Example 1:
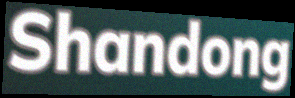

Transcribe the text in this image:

Shandong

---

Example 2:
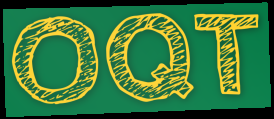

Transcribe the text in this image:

OQT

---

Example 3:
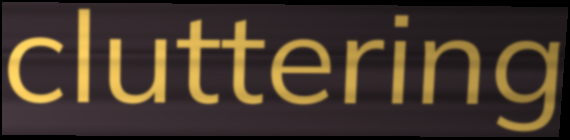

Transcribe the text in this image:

cluttering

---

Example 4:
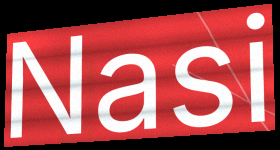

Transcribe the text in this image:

Nasi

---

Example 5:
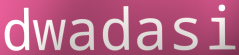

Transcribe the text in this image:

dwadasi